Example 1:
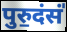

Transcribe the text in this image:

पुरु॒दंसं॑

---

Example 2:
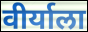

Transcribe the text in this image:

वीर्याला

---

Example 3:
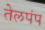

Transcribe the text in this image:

तेलपंप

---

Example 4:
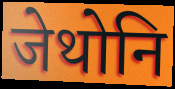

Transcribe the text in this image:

जेथोनि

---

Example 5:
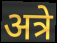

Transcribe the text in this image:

अत्रे